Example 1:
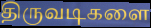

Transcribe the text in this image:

திருவடிகளை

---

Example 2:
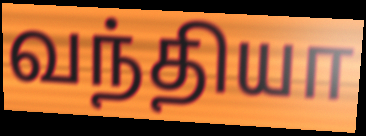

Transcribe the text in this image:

வந்தியா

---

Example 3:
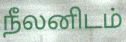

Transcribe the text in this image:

நீலனிடம்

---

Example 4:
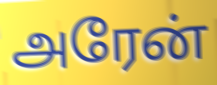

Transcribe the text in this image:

அரேன்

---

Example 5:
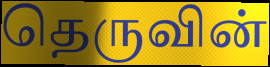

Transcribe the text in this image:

தெருவின்